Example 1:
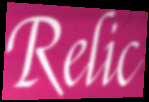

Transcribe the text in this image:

Relic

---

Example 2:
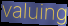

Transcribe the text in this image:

valuing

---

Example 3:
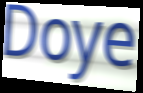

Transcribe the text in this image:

Doye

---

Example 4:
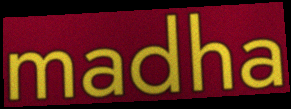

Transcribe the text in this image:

madha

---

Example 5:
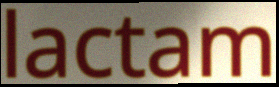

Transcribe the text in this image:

lactam